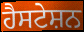
ਹੈਸਟੇਸ਼ਨ